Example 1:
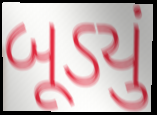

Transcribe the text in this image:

બૂડ્યું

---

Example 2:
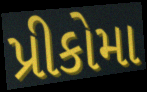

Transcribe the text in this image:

પ્રીકોમા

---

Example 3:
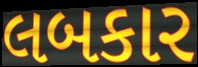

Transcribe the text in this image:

લબકાર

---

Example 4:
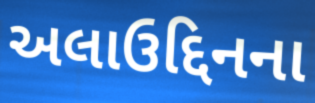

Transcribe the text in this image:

અલાઉદ્દિનના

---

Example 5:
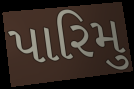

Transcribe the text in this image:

પારિમુ